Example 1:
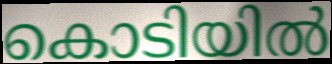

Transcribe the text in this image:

കൊടിയിൽ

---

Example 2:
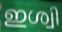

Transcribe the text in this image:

ഇശ്വി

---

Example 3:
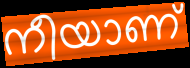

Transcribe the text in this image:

നീയാണ്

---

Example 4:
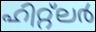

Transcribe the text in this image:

ഹിറ്റ്ലർ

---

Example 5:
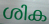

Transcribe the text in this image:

ശിക